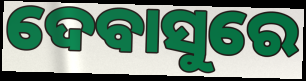
ଦେବାସୁରେ